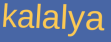
kalalya